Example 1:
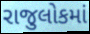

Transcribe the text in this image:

રાજુલોકમાં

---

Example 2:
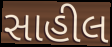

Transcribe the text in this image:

સાહીલ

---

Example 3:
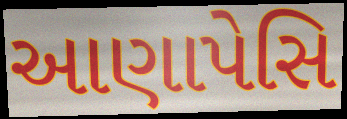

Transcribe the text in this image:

આણાપેસિ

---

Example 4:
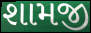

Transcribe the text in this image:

શામજી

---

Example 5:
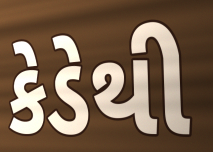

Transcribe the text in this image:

કેડેથી